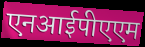
एनआईपीएएम